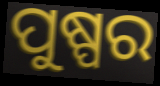
ପୁଷ୍ପର